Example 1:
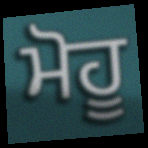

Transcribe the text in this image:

ਮੋਹੂ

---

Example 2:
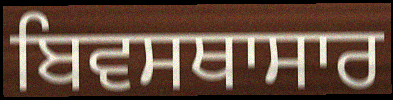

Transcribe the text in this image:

ਬਿਵਸਥਾਸਾਰ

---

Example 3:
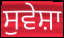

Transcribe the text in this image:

ਸੁਵੇਸ਼ਾ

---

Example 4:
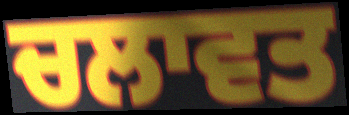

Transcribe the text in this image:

ਚਲਾਵਤ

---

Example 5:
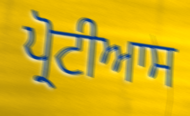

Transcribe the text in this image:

ਪ੍ਰੋਟੀਆਸ